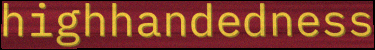
highhandedness